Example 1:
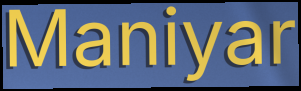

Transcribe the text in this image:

Maniyar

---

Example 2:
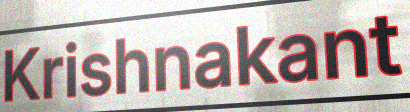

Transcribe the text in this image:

Krishnakant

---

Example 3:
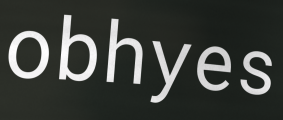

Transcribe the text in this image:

obhyes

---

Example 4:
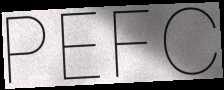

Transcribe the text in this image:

PEFC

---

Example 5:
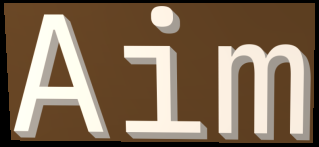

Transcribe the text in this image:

Aim